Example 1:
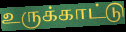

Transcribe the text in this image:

உருக்காட்டு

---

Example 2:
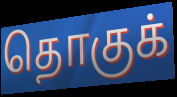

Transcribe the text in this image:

தொகுக்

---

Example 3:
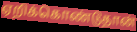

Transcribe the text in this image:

ஏறிக்கொண்டுதான்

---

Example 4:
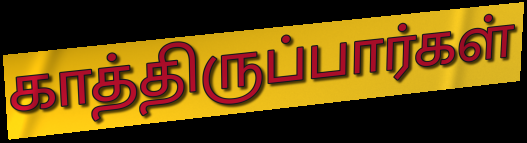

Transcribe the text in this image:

காத்திருப்பார்கள்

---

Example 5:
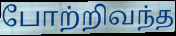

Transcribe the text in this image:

போற்றிவந்த